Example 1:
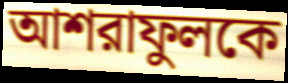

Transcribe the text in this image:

আশরাফুলকে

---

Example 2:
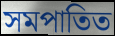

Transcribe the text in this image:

সমপাতিত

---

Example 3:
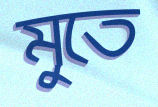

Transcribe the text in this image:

মুতে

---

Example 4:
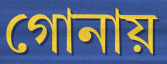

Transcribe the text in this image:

গোনায়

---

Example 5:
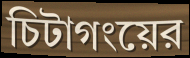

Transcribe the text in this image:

চিটাগংয়ের